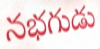
నభగుడు